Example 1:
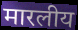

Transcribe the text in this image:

मारलीय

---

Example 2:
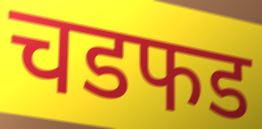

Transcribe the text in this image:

चडफड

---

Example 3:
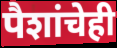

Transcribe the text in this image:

पैशांचेही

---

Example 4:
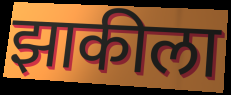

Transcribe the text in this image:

झाकीला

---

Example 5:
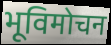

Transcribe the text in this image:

भूविमोचन